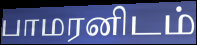
பாமரனிடம்